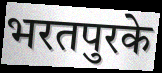
भरतपुरके